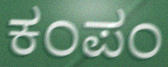
ಕಂಪಂ